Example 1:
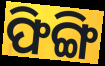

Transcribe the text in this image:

ଫିଙ୍ଗି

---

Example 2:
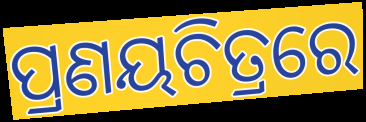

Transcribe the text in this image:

ପ୍ରଣୟଚିତ୍ରରେ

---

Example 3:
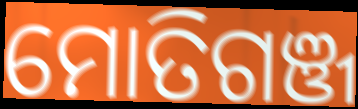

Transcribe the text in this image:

ମୋତିଗଞ୍ଜ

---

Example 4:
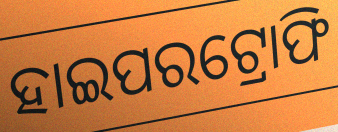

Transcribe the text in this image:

ହାଇପରଟ୍ରୋଫି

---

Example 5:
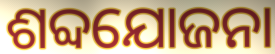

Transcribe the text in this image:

ଶବ୍ଦଯୋଜନା